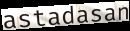
astadasan